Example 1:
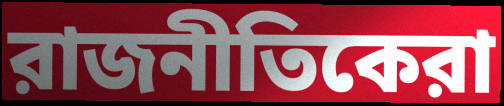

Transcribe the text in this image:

রাজনীতিকেরা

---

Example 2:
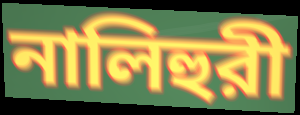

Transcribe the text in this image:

নালিহুরী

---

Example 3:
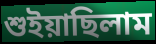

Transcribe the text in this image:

শুইয়াছিলাম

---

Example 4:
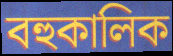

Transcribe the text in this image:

বহুকালিক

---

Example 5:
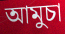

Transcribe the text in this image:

আমুচা